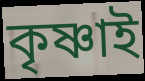
কৃষ্ণাই